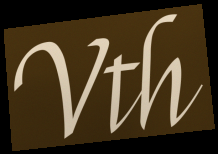
Vth